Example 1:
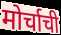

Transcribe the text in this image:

मोर्चाची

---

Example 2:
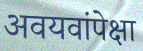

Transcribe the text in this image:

अवयवांपेक्षा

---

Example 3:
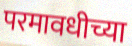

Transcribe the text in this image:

परमावधीच्या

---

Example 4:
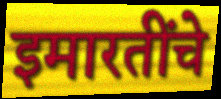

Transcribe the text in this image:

इमारतींचे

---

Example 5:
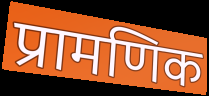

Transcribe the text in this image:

प्रामणिक